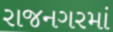
રાજનગરમાં